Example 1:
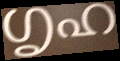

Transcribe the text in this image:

ഗൃഹ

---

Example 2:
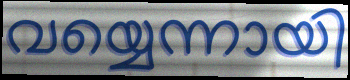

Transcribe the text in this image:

വയ്യെന്നായി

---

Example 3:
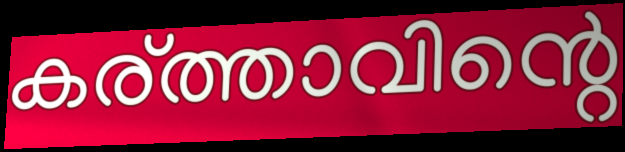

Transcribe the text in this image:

കര്ത്താവിന്റെ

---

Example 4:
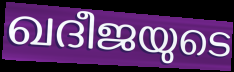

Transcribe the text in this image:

ഖദീജയുടെ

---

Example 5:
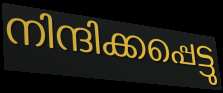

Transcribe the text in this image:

നിന്ദിക്കപ്പെട്ടു